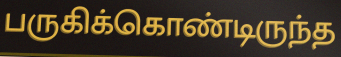
பருகிக்கொண்டிருந்த